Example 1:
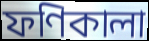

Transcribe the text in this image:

ফণিকালা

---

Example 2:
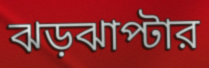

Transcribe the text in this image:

ঝড়ঝাপ্টার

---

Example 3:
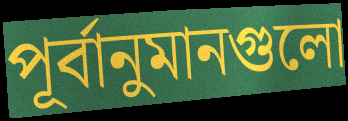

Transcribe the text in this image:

পূর্বানুমানগুলো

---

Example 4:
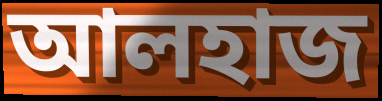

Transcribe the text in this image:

আলহাজ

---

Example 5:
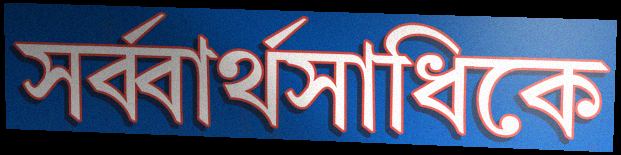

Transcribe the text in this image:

সর্ব্বার্থসাধিকে